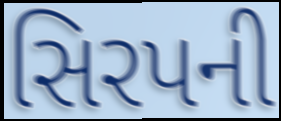
સિરપની